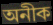
অনীক